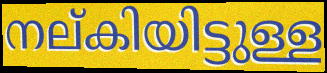
നല്കിയിട്ടുള്ള